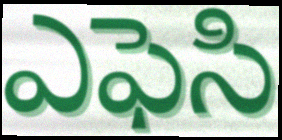
ఎఫెసి